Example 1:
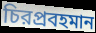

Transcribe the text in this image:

চিরপ্রবহমান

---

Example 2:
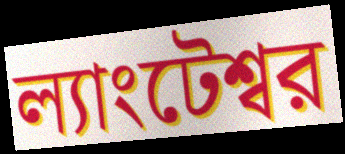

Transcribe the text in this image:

ল্যাংটেশ্বর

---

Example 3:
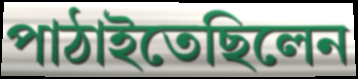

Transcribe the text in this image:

পাঠাইতেছিলেন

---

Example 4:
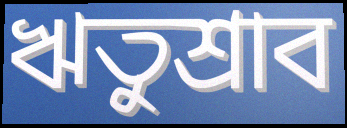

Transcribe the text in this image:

ঋতুশ্রাব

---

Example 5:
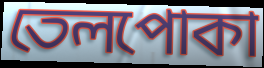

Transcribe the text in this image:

তেলপোকা